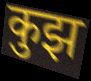
कुझ